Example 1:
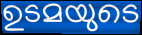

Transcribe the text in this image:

ഉടമയുടെ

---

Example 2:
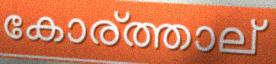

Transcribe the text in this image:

കോര്ത്താല്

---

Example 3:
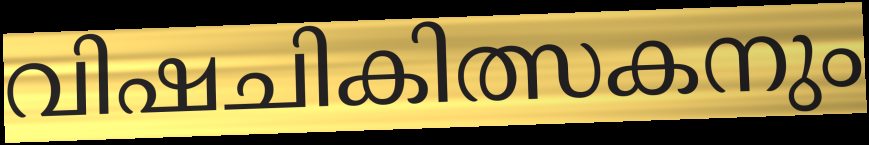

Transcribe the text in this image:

വിഷചികിത്സകനും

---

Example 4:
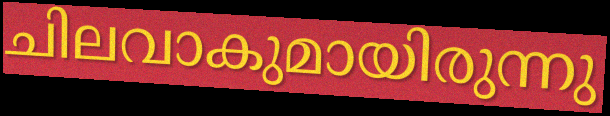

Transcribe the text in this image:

ചിലവാകുമായിരുന്നു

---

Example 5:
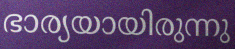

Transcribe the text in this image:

ഭാര്യയായിരുന്നു